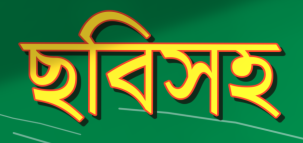
ছবিসহ